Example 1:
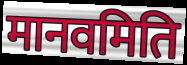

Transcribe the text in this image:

मानवमिति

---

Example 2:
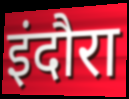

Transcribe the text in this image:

इंदौरा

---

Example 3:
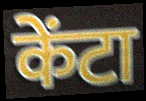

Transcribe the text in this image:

केंटा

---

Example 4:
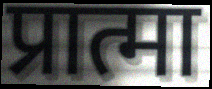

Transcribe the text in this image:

प्रात्मा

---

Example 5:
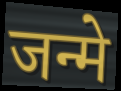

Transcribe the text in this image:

जन्मे